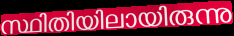
സ്ഥിതിയിലായിരുന്നു